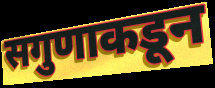
सगुणाकडून